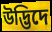
উদ্ভিদে